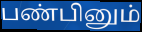
பண்பினும்